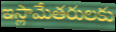
ఇస్లామేతరులకు